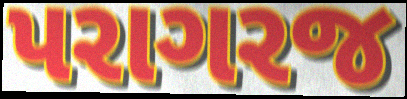
પરાગરજ